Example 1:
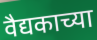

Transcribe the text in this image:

वैद्यकाच्या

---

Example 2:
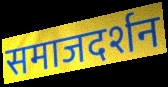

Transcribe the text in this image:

समाजदर्शन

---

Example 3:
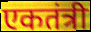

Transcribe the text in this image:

एकतंत्री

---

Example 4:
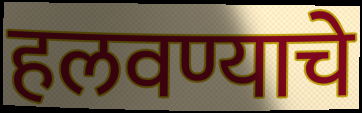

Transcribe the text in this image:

हलवण्याचे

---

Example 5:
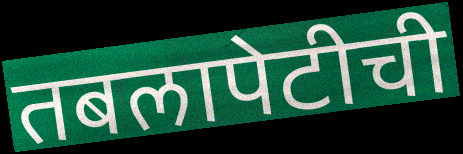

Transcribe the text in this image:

तबलापेटीची